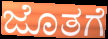
ಜೊತಗೆ